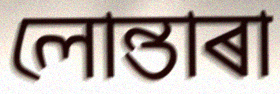
লোন্তাৰা